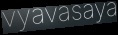
vyavasaya